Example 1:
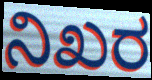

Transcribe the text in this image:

ನಿಖರ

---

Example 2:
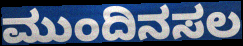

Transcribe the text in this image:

ಮುಂದಿನಸಲ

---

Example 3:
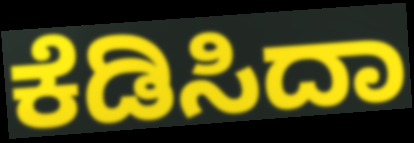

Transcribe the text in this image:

ಕೆಡಿಸಿದಾ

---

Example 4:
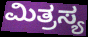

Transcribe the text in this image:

ಮಿತ್ರಸ್ಯ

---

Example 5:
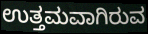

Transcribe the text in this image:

ಉತ್ತಮವಾಗಿರುವ